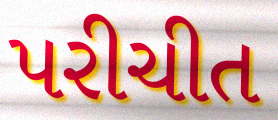
પરીચીત